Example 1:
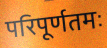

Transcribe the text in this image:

परिपूर्णतमः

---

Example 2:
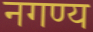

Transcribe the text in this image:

नगण्य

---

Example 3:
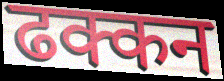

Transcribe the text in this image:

ढक्कन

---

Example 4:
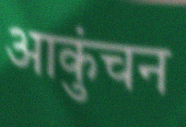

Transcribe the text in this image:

आकुंचन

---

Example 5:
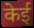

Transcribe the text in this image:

केई